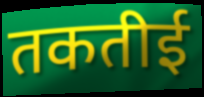
तकतीई